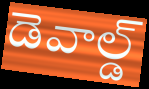
డెవాల్డ్